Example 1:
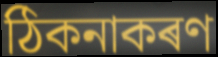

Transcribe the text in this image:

ঠিকনাকৰণ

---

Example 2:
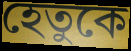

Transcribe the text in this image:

হেতুকে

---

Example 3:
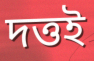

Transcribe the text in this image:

দত্তই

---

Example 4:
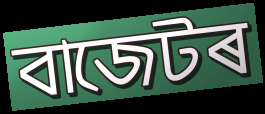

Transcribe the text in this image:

বাজেটৰ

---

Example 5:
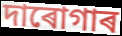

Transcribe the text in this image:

দাৰোগাৰ